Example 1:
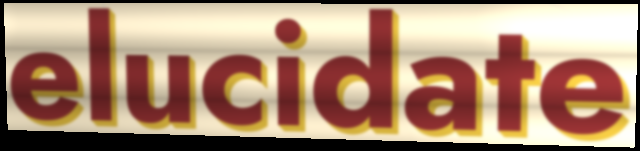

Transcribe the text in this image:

elucidate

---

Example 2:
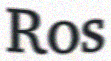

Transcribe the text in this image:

Ros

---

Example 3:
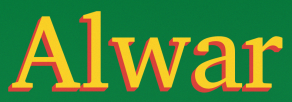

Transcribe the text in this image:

Alwar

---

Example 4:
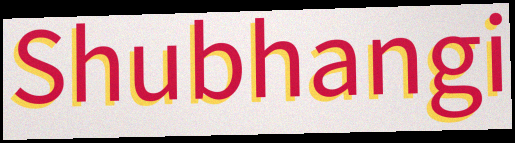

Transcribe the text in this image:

Shubhangi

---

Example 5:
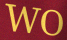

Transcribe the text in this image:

WO